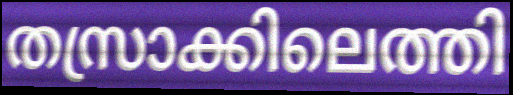
തസ്രാക്കിലെത്തി